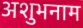
अशुभनाम